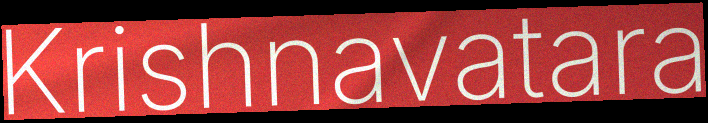
Krishnavatara